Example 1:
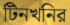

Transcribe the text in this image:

টিনখনির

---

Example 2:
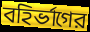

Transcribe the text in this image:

বহির্ভাগের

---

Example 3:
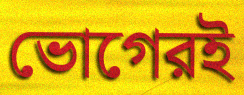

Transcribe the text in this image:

ভোগেরই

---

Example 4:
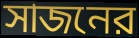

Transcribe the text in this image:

সাজনের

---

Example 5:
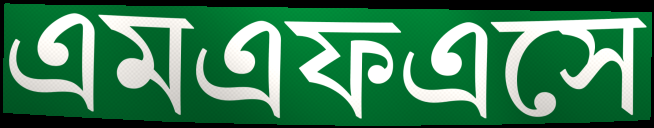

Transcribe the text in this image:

এমএফএসে